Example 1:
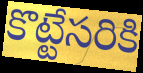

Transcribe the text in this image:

కొట్టేసరికి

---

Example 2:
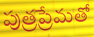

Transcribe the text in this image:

పుత్రప్రేమతో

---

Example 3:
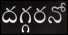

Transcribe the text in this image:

దగ్గరనో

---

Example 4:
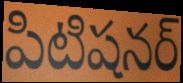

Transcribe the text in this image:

పిటిషనర్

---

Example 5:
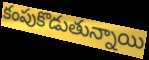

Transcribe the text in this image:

కంపుకొడుతున్నాయి